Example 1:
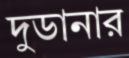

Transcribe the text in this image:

দুডানার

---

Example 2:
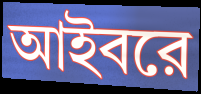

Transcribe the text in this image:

আইবরে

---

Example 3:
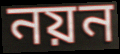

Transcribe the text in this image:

নয়ন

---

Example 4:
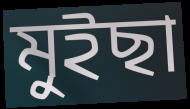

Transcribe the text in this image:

মুইছা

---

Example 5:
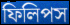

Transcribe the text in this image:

ফিলিপস